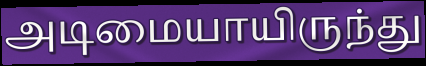
அடிமையாயிருந்து